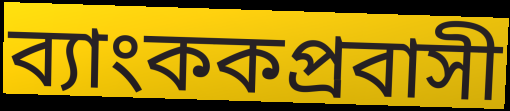
ব্যাংককপ্রবাসী